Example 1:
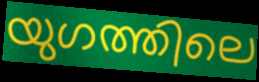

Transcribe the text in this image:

യുഗത്തിലെ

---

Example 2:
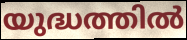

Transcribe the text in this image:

യുദ്ധത്തിൽ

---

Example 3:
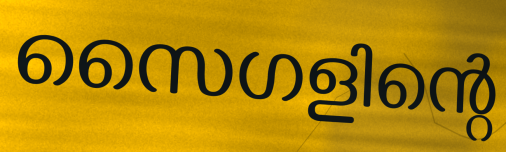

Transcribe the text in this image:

സൈഗളിന്റെ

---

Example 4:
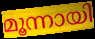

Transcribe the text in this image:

മൂന്നായി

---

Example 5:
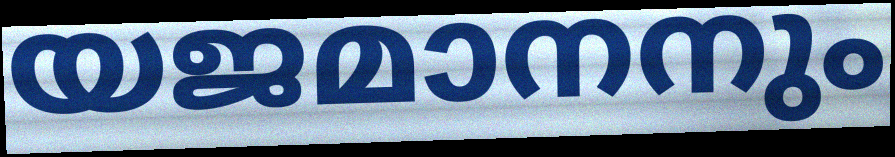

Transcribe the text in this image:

യജമാനനും